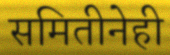
समितीनेही